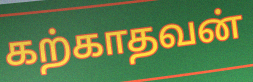
கற்காதவன்